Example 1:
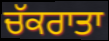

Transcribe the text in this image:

ਚੱਕਰਾਤਾ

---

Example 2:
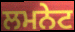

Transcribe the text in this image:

ਲਮਨੇਟ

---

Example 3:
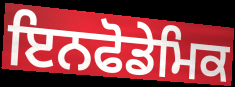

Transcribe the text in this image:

ਇਨਫੋਡੇਮਿਕ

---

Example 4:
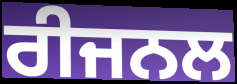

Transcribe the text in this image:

ਰੀਜਨਲ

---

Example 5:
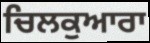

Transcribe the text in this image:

ਚਿਲਕੁਆਰਾ